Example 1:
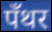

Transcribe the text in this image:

पँथर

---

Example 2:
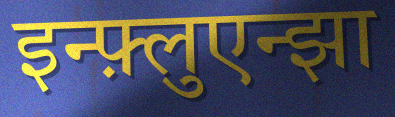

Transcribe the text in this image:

इन्फ़्लुएन्झा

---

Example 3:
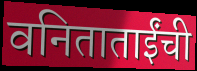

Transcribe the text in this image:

वनिताताईंची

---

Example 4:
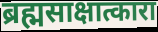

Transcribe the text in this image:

ब्रह्मसाक्षात्कारा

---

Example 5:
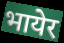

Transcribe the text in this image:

भायेर